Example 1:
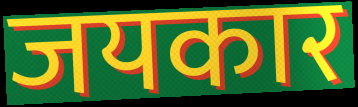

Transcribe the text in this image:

जयकार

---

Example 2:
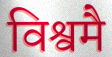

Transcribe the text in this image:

विश्वमै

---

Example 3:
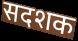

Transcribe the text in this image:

सदशक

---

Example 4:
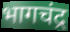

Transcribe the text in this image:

भागचंद्र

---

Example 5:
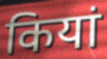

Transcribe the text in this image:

कियां